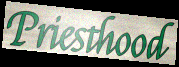
Priesthood